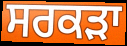
ਸਰਕੜਾ